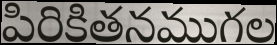
పిరికితనముగల